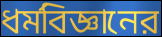
ধর্মবিজ্ঞানের